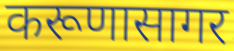
करूणासागर